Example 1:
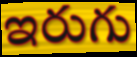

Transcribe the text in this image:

ఇరుగు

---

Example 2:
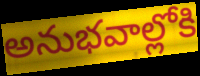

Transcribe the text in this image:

అనుభవాల్లోకి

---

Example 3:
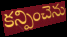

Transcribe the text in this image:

కన్పించెను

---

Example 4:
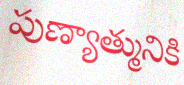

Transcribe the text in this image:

పుణ్యాత్మునికి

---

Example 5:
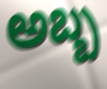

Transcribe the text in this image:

అబ్బ